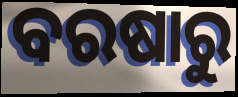
ବରଷାରୁ